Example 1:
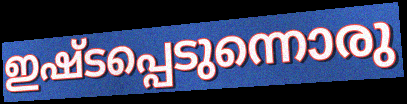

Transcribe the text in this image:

ഇഷ്ടപ്പെടുന്നൊരു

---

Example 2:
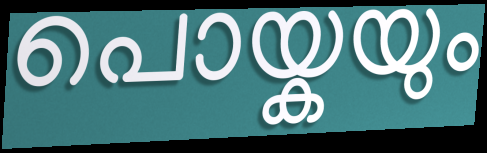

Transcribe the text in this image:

പൊയ്കയും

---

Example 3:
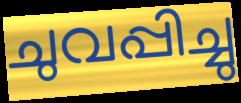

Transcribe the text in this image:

ചുവപ്പിച്ചു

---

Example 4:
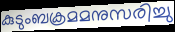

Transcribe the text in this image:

കുടുംബക്രമമനുസരിച്ചു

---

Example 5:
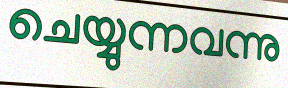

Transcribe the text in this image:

ചെയ്യുന്നവന്നു